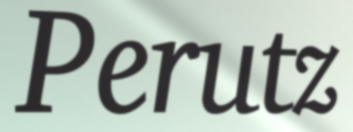
Perutz